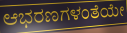
ಆಭರಣಗಳಂತೆಯೇ